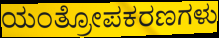
ಯಂತ್ರೋಪಕರಣಗಳು